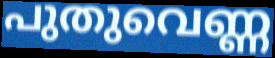
പുതുവെണ്ണ